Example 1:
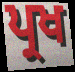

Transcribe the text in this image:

ਪ੍ਰਖ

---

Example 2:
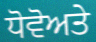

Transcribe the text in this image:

ਧੋਵੋਅਤੇ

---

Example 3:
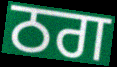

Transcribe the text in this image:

ਠਗ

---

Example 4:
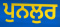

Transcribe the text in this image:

ਪੁਨਲੁਰ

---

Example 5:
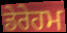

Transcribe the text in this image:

ਡੇਰੇਹਮ